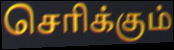
செரிக்கும்